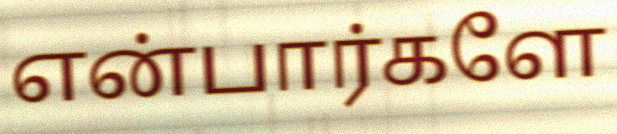
என்பார்களே